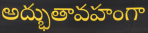
అద్భుతావహంగా